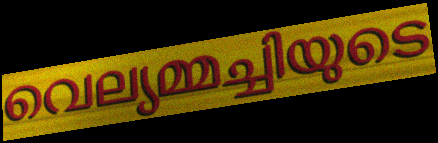
വെല്യമ്മച്ചിയുടെ